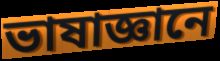
ভাষাজ্ঞানে